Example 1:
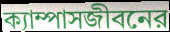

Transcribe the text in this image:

ক্যাম্পাসজীবনের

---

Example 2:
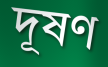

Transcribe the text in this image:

দূষণ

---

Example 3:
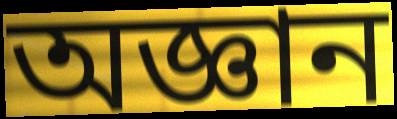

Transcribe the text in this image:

অজ্ঞান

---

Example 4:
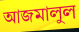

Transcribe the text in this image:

আজমালুল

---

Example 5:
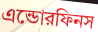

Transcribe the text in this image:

এন্ডোরফিনস